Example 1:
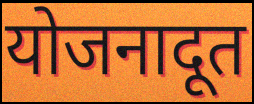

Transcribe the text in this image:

योजनादूत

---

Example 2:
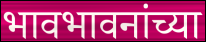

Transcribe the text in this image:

भावभावनांच्या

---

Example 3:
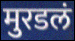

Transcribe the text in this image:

मुरडलं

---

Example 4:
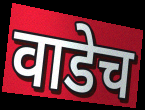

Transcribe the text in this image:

वाडेच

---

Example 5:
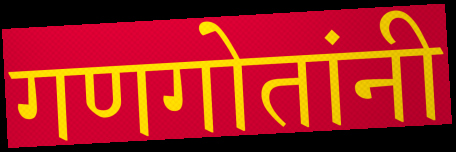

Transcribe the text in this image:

गणगोतांनी